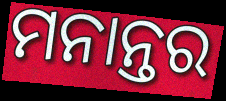
ମନାନ୍ତର